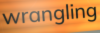
wrangling